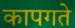
कापगते